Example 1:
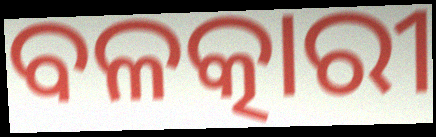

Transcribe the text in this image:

ବଳତ୍କାରୀ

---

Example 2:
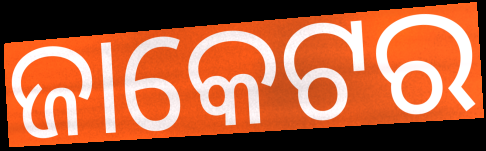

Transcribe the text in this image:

ଜାକେଟର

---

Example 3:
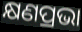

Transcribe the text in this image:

କ୍ଷଣପ୍ରଭା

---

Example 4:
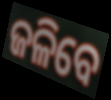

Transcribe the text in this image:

ଜଳିବେ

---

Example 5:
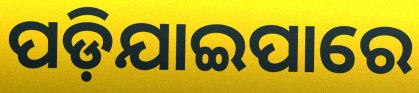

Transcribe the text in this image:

ପଡ଼ିଯାଇପାରେ